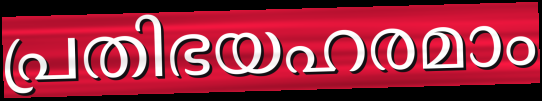
പ്രതിഭയഹരമാം